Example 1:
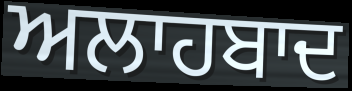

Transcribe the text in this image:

ਅਲਾਹਬਾਦ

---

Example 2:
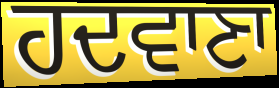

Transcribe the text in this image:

ਹਦਵਾਣਾ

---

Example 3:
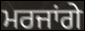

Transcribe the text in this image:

ਮਰਜਾਂਗੇ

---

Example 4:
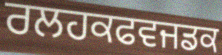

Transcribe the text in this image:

ਰਲਹਕਫਵਜਡਕ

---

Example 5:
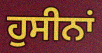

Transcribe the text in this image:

ਹੁਸੀਨਾਂ